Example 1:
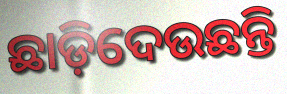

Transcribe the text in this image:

ଛାଡ଼ିଦେଉଛନ୍ତି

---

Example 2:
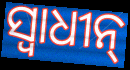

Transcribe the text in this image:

ସ୍ଵାଧୀନ୍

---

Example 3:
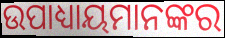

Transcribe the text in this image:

ଉପାଧ୍ୟାୟମାନଙ୍କର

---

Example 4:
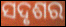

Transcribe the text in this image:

ସଦୃଶର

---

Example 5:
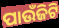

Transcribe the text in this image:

ପାଉଁଜିଟି